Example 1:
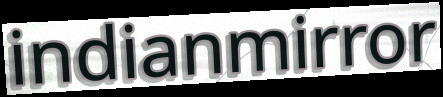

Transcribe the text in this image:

indianmirror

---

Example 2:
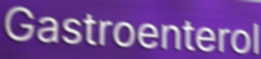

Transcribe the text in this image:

Gastroenterol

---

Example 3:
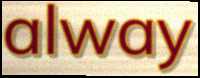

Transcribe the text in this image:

alway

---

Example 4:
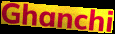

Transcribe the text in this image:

Ghanchi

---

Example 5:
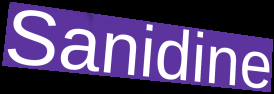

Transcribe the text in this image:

Sanidine